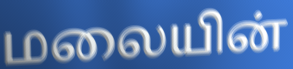
மலையின்